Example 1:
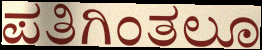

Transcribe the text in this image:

ಪತಿಗಿಂತಲೂ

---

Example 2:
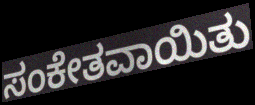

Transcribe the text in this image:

ಸಂಕೇತವಾಯಿತು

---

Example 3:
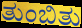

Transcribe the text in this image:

ತುಂಬಿತು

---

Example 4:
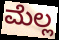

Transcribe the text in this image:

ಮೆಲ್ಲ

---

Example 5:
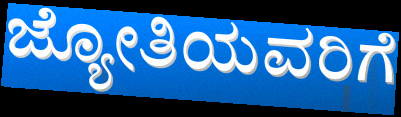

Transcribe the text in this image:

ಜ್ಯೋತಿಯವರಿಗೆ